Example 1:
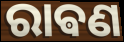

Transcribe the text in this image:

ରାଵଣ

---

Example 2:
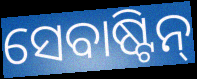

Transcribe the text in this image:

ସେବାଷ୍ଟିନ୍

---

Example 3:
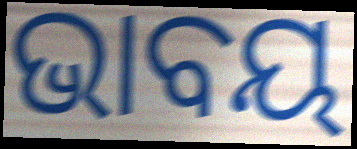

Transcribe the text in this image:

ଭାବୟ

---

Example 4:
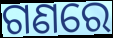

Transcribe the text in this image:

ଗଣରେ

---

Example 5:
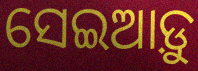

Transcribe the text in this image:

ସେଇଆଡ଼ୁ